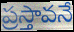
ప్రస్తావనే